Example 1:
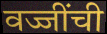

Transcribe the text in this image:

वज्जींची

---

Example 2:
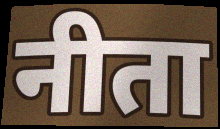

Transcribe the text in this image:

नीता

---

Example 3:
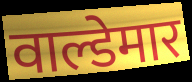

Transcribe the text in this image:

वाल्डेमार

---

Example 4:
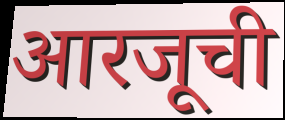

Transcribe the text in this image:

आरजूची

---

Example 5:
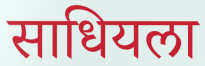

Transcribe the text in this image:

साधियला